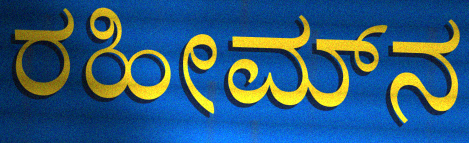
ರಹೀಮ್‌ನ